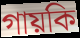
গায়কি